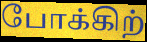
போக்கிற்